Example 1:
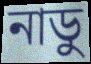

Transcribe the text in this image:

নাডু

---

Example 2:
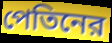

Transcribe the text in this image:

পেতিনের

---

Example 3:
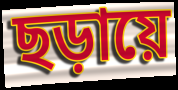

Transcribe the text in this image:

ছড়ায়ে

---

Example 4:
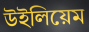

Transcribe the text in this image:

উইলিয়েম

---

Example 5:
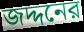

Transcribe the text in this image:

জদ্দনের